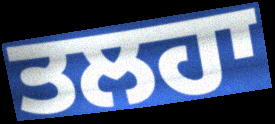
ਤਲਹਾ